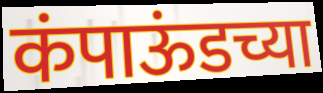
कंपाऊंडच्या